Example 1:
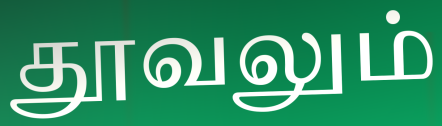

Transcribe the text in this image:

தூவலும்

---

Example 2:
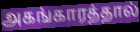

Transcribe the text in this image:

அகங்காரத்தால்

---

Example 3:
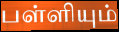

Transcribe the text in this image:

பள்ளியும்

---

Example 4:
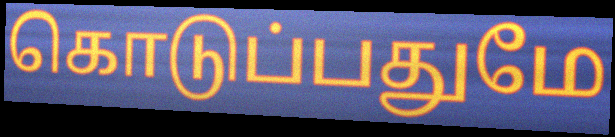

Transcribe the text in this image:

கொடுப்பதுமே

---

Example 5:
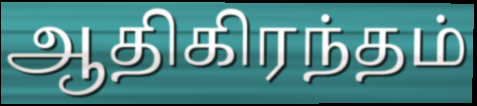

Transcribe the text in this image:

ஆதிகிரந்தம்